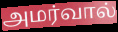
அமர்வால்